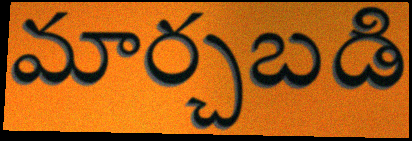
మార్చబడి